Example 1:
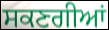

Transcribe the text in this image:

ਸਕਣਗੀਆਂ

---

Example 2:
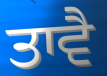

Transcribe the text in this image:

ਤਾਵੈ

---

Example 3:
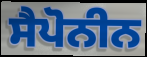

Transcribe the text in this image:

ਸੈਪੋਨੀਨ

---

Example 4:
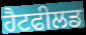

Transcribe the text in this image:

ਹੈਟਫੀਲਡ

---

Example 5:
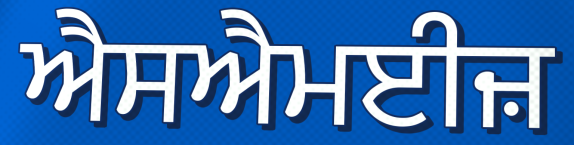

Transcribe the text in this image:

ਐਸਐਮਈਜ਼